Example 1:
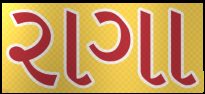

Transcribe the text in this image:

રાગા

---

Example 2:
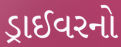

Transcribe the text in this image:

ડ્રાઈવરનો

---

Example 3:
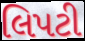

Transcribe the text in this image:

લિપટી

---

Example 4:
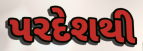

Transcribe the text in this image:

પરદેશથી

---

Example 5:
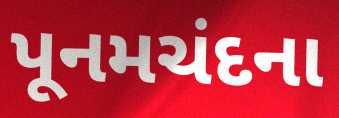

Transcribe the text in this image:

પૂનમચંદના